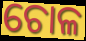
ଚୋଳ